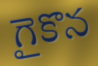
గైకొన